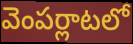
వెంపర్లాటలో